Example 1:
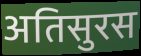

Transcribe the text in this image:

अतिसुरस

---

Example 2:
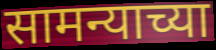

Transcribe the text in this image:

सामन्याच्या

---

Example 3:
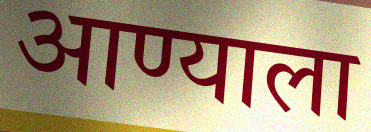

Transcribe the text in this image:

आण्याला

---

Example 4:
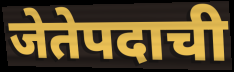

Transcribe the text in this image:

जेतेपदाची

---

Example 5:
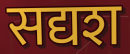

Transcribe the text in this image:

सद्यश